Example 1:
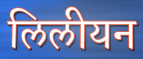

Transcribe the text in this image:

लिलीयन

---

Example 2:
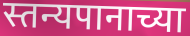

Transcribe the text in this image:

स्तन्यपानाच्या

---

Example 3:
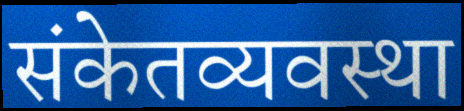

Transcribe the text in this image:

संकेतव्यवस्था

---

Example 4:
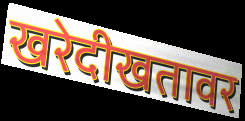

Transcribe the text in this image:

खरेदीखतावर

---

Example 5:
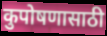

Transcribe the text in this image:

कुपोषणासाठी